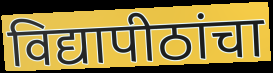
विद्यापीठांचा